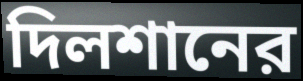
দিলশানের